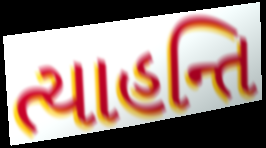
ત્યાહન્તિ